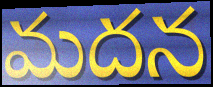
మదన